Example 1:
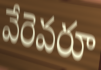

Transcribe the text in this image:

వేరెవరూ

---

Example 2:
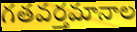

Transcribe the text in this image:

గతవర్తమానాల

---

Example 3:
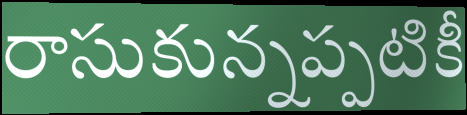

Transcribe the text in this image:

రాసుకున్నప్పటికీ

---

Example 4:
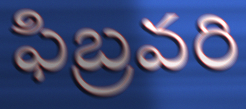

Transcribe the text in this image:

ఫిబ్రవరి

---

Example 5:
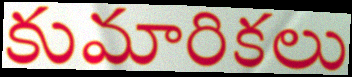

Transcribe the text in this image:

కుమారికలు